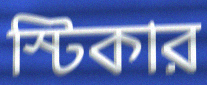
স্টিকার